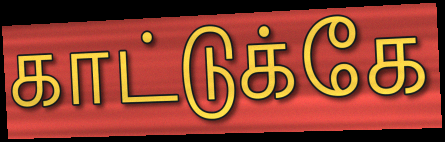
காட்டுக்கே